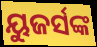
ୟୁଜର୍ସଙ୍କ